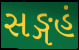
સઙ્ગહં